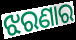
ଝରଣାର